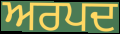
ਅਰਪਦ